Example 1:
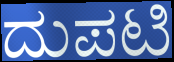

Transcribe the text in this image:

ದುಪಟಿ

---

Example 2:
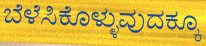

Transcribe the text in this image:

ಬೆಳೆಸಿಕೊಳ್ಳುವುದಕ್ಕೂ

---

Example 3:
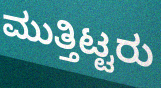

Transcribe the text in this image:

ಮುತ್ತಿಟ್ಟರು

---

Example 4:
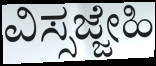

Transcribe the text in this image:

ವಿಸ್ಸಜ್ಜೇಹಿ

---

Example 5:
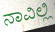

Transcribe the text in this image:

ನಾವಿಲ್ಲಿ